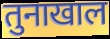
तुनाखाल